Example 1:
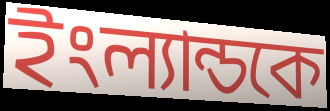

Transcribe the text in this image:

ইংল্যান্ডকে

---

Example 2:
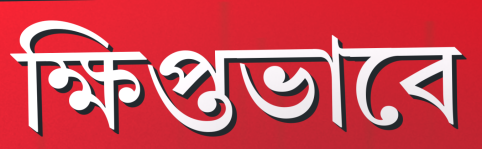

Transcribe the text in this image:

ক্ষিপ্তভাবে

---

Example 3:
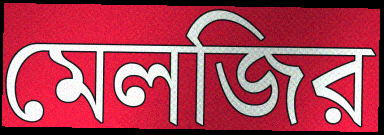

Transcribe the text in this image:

মেলজির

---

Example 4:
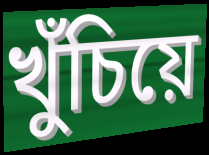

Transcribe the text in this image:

খুঁচিয়ে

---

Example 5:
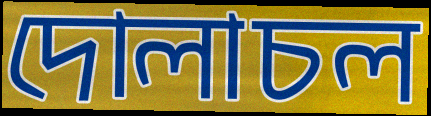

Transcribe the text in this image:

দোলাচল